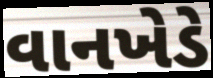
વાનખેડે